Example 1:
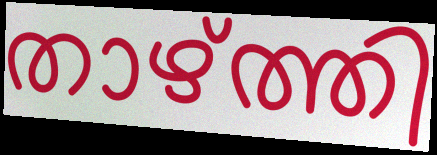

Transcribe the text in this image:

താഴ്ത്തി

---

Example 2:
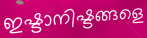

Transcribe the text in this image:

ഇഷ്ടാനിഷ്ടങ്ങളെ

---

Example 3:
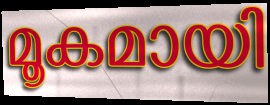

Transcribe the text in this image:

മൂകമായി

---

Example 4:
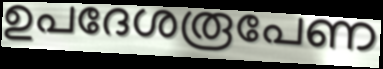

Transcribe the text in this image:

ഉപദേശരൂപേണ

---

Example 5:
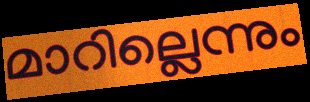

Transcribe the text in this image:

മാറില്ലെന്നും